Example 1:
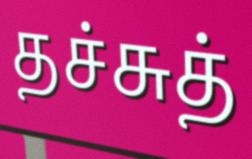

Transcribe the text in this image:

தச்சுத்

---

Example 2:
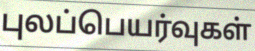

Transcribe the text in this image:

புலப்பெயர்வுகள்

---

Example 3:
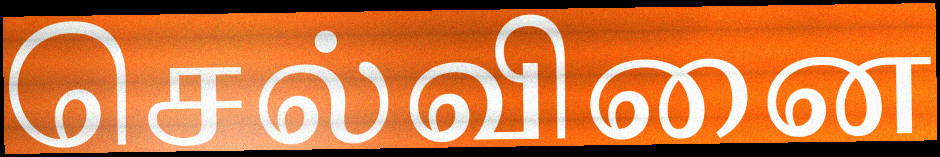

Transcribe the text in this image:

செல்வினை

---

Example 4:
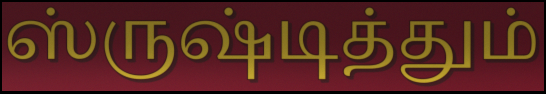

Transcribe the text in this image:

ஸ்ருஷ்டித்தும்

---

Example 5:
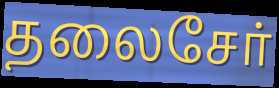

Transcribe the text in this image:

தலைசேர்